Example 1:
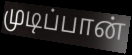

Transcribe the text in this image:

முடிப்பான்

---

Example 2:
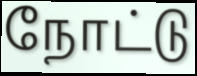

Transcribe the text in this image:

நோட்டு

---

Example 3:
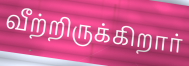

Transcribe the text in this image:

வீற்றிருக்கிறார்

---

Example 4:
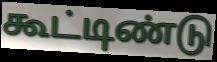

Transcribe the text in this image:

கூட்டிண்டு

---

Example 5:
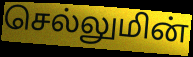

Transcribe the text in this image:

செல்லுமின்